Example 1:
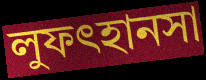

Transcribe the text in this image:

লুফৎহানসা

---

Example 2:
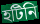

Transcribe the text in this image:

হটিনি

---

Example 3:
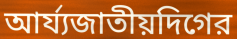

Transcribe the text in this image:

আর্য্যজাতীয়দিগের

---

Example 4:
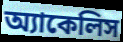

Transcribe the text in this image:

অ্যাকেলিস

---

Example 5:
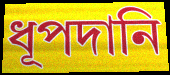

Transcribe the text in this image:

ধূপদানি